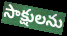
సాక్షులను